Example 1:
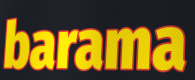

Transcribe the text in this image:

barama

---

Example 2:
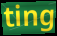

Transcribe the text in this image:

ting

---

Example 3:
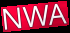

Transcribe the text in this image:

NWA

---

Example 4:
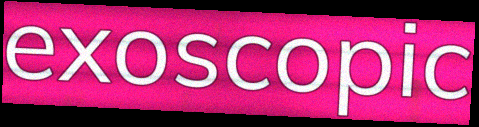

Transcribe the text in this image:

exoscopic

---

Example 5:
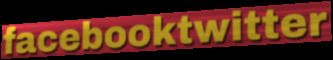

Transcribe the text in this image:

facebooktwitter